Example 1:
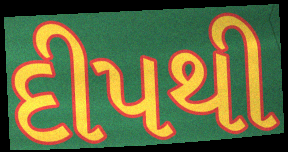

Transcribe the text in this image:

દીપથી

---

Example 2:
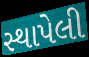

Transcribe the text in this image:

સ્‍થાપેલી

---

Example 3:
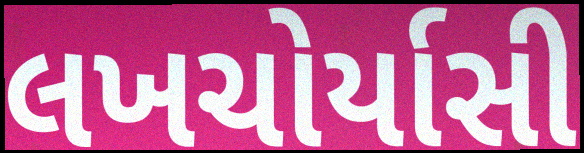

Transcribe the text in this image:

લખચોર્યાસી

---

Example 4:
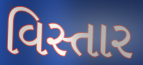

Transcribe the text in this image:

વિસ્તાર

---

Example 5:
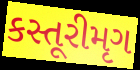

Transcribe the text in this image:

કસ્તૂરીમૃગ